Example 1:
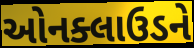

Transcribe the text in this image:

ઓનક્લાઉડને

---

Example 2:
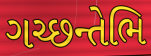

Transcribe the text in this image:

ગચ્છન્તેભિ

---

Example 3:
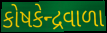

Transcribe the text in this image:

કોષકેન્દ્રવાળા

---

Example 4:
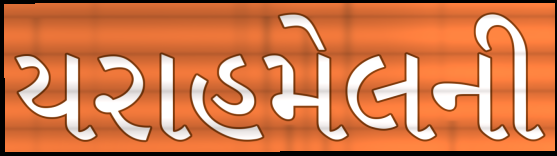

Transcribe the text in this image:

યરાહમેલની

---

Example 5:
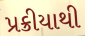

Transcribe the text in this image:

પ્રક્રીયાથી